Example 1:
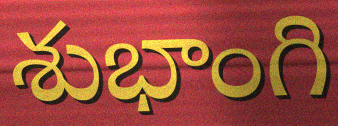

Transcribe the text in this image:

శుభాంగి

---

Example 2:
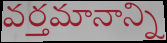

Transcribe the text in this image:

వర్తమానాన్ని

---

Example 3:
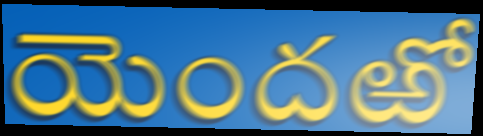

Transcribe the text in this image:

యెందఱో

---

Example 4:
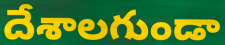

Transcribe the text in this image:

దేశాలగుండా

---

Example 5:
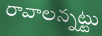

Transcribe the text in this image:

రావాలన్నట్టు